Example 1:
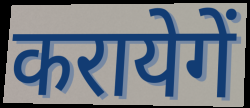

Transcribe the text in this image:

करायेगें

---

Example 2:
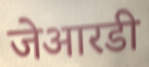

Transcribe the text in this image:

जेआरडी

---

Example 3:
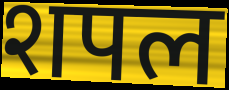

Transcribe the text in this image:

शपल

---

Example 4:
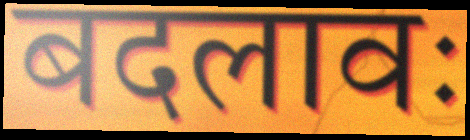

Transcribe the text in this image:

बदलावः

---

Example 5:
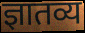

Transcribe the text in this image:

ज्ञातव्य